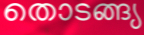
തൊടങ്ങ്യ